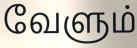
வேளும்